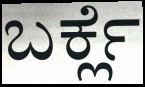
ಬರ್ಕ್ಲೆ